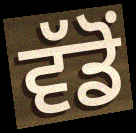
ਵੱਡੋਂ